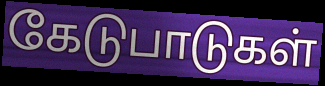
கேடுபாடுகள்